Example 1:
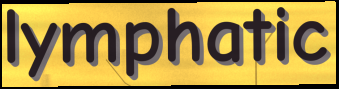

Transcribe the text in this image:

lymphatic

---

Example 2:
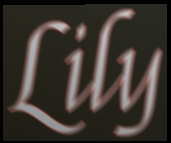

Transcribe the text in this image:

Lily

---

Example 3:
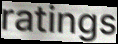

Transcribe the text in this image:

ratings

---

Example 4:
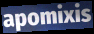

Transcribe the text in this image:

apomixis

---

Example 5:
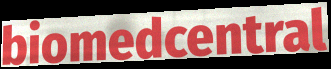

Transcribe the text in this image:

biomedcentral